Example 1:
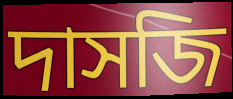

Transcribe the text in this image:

দাসজি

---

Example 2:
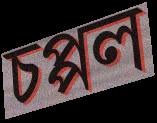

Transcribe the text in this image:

চপ্পল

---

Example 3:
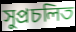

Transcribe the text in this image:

সুপ্রচলিত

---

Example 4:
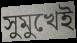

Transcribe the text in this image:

সুমুখেই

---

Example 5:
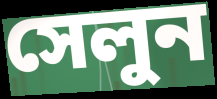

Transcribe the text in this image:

সেলুন